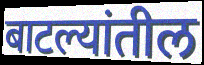
बाटल्यांतील